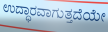
ಉದ್ಧಾರವಾಗುತ್ತದೆಯೇ